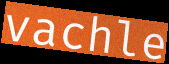
vachle